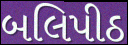
બલિપીઠ